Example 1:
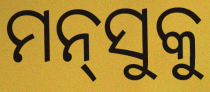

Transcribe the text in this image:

ମନ୍‌ସୁକୁ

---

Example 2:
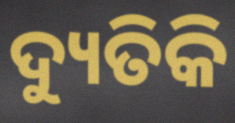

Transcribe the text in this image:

ଦ୍ୟୁତିକି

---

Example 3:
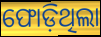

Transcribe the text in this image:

ଫୋଡ଼ିଥିଲା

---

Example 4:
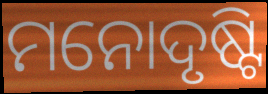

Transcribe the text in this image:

ମନୋଦୃଷ୍ଟି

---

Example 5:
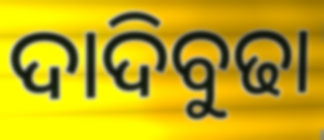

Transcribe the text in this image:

ଦାଦିବୁଢା